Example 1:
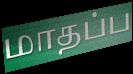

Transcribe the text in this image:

மாதப்ப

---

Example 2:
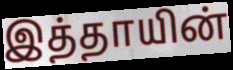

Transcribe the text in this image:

இத்தாயின்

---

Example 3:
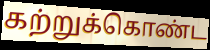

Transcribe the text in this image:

கற்றுக்கொண்ட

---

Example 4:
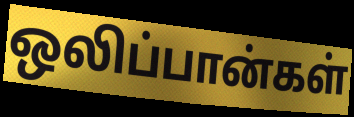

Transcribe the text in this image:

ஒலிப்பான்கள்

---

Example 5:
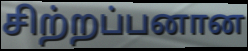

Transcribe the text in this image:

சிற்றப்பனான